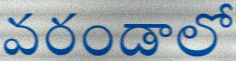
వరండాలో